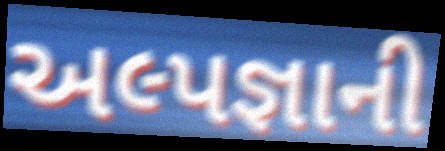
અલ્પજ્ઞાની